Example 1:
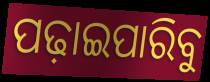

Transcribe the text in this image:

ପଢ଼ାଇପାରିବୁ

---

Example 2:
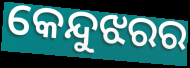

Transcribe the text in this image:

କେନ୍ଦୁଝରର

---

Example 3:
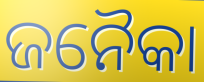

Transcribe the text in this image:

ଜନୈକା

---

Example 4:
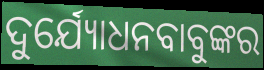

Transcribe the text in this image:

ଦୁର୍ଯ୍ୟୋଧନବାବୁଙ୍କର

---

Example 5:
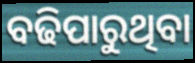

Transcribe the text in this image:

ବଢିପାରୁଥିବା